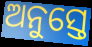
ଅନୁସ୍ତେ